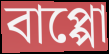
বাপ্পো